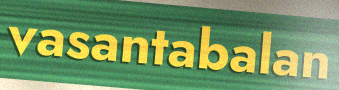
vasantabalan